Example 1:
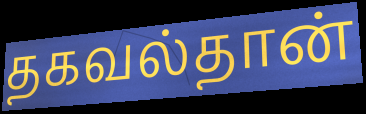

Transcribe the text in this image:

தகவல்தான்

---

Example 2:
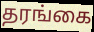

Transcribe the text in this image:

தரங்கை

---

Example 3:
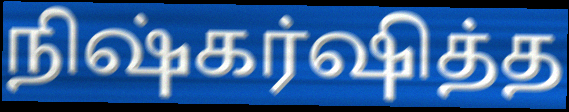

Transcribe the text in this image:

நிஷ்கர்ஷித்த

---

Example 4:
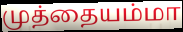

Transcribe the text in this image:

முத்தையம்மா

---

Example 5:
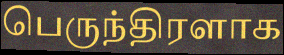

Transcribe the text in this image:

பெருந்திரளாக